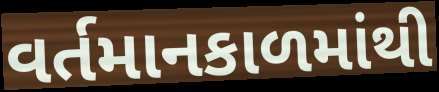
વર્તમાનકાળમાંથી